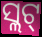
ସ୍ଲଟ୍